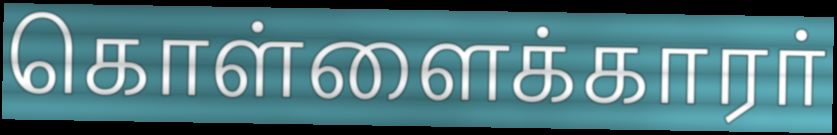
கொள்ளைக்காரர்